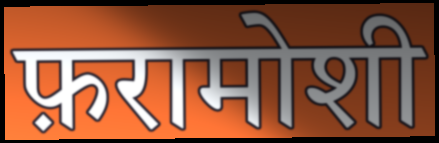
फ़रामोशी